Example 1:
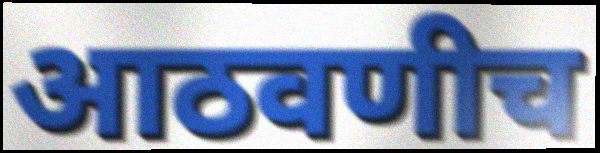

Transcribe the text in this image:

आठवणीच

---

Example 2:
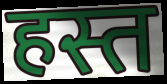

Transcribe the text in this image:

हस्त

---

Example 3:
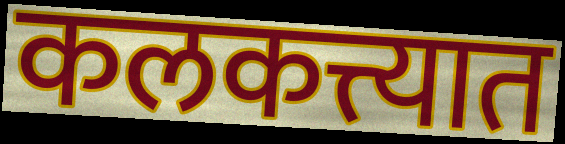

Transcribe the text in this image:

कलकत्त्यात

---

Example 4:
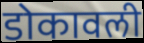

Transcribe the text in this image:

डोकावली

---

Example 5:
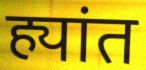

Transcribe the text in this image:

ह्यांत